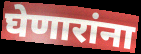
घेणारांना